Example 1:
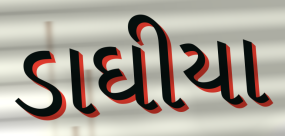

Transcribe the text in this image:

ડાઘીયા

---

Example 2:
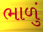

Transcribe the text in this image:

ભાળું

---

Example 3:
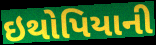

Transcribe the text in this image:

ઇથોપિયાની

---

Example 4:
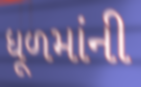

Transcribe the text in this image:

ધૂળમાંની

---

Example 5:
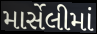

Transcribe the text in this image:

માર્સેલીમાં